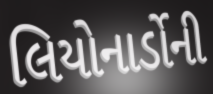
લિયોનાર્ડોની